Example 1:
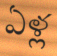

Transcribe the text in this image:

ఏళ్ల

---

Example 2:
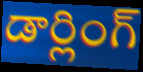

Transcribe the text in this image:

డార్లింగ్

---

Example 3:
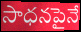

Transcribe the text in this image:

సాధనపైనే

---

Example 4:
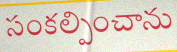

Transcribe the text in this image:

సంకల్పించాను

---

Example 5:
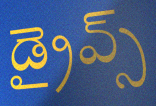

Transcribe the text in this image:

డ్రైవ్స్